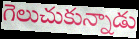
గెలుచుకున్నాడు